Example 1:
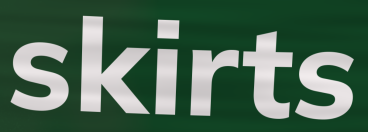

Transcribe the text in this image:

skirts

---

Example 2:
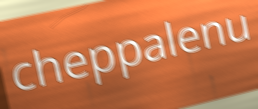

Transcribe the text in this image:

cheppalenu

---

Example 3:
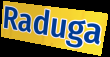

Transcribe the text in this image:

Raduga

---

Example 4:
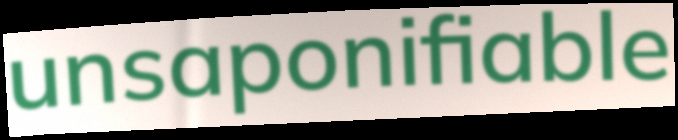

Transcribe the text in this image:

unsaponifiable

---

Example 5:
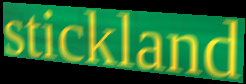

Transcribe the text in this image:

stickland